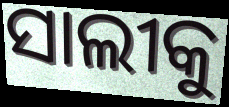
ସାଲୀକୁ